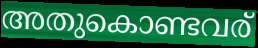
അതുകൊണ്ടവര്